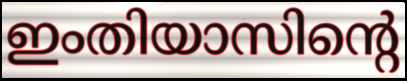
ഇംതിയാസിന്റെ